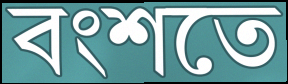
বংশতে